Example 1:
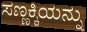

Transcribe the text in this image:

ಸಣ್ಣಕ್ಕಿಯನ್ನು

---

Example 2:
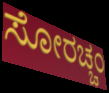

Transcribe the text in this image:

ಸೋರಚ್ಚಂ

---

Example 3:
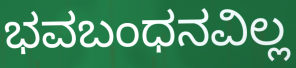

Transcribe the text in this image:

ಭವಬಂಧನವಿಲ್ಲ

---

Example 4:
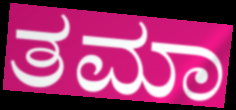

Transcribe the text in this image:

ತಮಾ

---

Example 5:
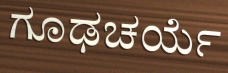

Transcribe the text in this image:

ಗೂಢಚರ್ಯೆ